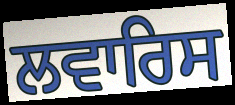
ਲਵਾਰਿਸ